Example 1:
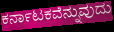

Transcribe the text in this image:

ಕರ್ನಾಟಕವೆನ್ನುವುದು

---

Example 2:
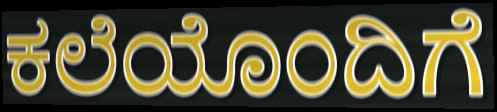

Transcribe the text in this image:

ಕಲೆಯೊಂದಿಗೆ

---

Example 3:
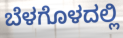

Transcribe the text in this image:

ಬೆಳಗೊಳದಲ್ಲಿ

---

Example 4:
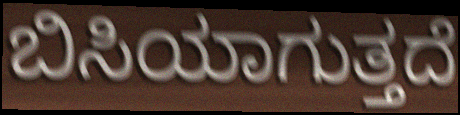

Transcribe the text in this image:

ಬಿಸಿಯಾಗುತ್ತದೆ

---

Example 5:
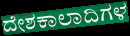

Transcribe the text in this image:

ದೇಶಕಾಲಾದಿಗಳ